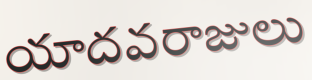
యాదవరాజులు